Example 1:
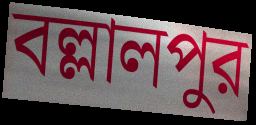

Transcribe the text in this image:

বল্লালপুর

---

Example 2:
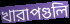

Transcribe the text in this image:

খারাপগুলি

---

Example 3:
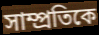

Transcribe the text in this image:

সাম্প্রতিকে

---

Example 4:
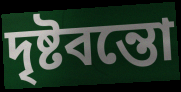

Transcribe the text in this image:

দৃষ্টবন্তো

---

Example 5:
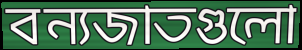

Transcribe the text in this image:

বন্যজাতগুলো